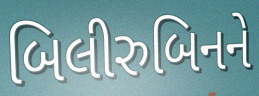
બિલીરુબિનને